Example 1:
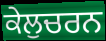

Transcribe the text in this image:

ਕੇਲੁਚਰਨ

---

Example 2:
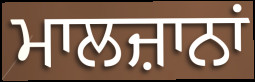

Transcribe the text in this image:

ਮਾਲਜ਼ਾਨਾਂ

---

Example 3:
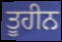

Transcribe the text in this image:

ਤੂਹੀਨ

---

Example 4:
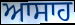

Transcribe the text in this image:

ਆਸਾਹ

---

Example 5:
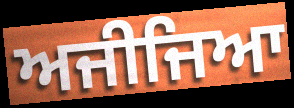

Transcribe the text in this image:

ਅਜੀਜਿਆ